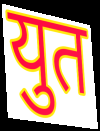
युत